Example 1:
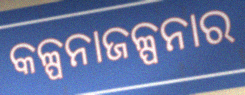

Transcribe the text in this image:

କଳ୍ପନାଜଳ୍ପନାର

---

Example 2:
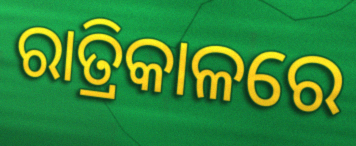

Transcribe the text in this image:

ରାତ୍ରିକାଳରେ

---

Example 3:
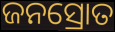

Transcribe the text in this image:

ଜନସ୍ରୋତ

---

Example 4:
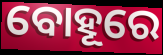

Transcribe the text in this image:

ବୋହୂରେ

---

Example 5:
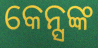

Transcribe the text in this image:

କେନ୍ସଙ୍କ